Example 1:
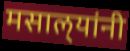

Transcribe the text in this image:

मसाल्यांनी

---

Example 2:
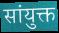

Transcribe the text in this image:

सांयुक्त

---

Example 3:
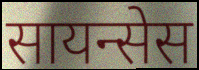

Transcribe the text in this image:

सायन्सेस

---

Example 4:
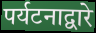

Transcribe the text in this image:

पर्यटनाद्वारे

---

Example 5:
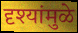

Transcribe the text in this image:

दृश्यांमुळे